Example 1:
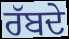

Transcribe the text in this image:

ਰੱਬਦੇ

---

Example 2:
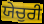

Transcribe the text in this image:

ਯੇਚੁਰੀ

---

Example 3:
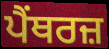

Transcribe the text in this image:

ਪੈਂਥਰਜ਼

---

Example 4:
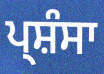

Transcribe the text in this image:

ਪ੍ਸ਼ੰਸਾ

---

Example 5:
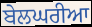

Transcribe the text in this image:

ਬੇਲਘਰੀਆ